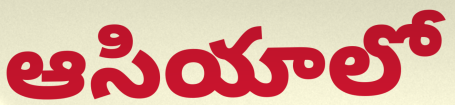
ఆసియాలో